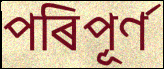
পৰিপূৰ্ণ